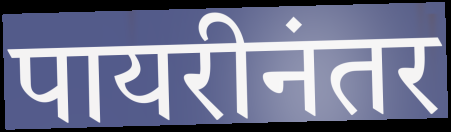
पायरीनंतर